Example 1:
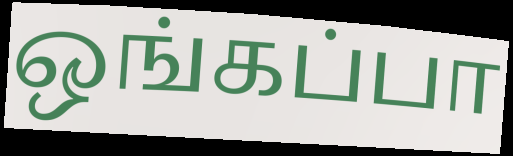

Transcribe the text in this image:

ஒங்கப்பா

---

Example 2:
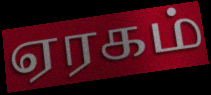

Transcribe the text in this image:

ஏரகம்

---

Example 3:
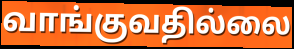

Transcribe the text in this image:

வாங்குவதில்லை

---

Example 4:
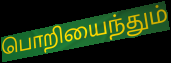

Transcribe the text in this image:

பொறியைந்தும்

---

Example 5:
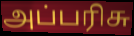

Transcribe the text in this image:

அப்பரிசு